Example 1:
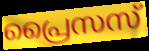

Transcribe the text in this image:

പ്രൈസസ്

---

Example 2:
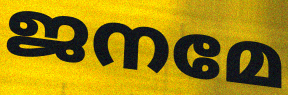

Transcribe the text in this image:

ജനമേ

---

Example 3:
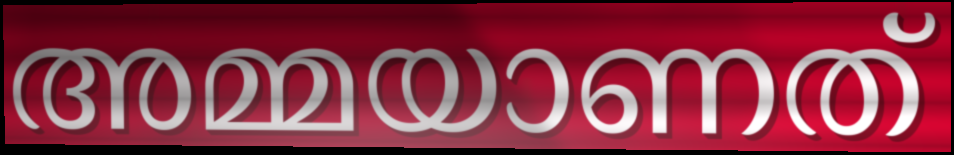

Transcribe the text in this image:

അമ്മയാണത്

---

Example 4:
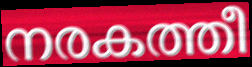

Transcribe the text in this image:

നരകത്തീ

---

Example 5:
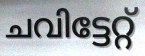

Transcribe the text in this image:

ചവിട്ടേറ്റ്